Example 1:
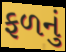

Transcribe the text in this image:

ફળનું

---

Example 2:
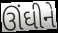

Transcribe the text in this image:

ઊંઘીને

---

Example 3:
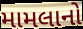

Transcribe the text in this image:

મામલાનો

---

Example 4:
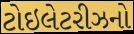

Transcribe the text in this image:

ટોઇલેટરીઝનો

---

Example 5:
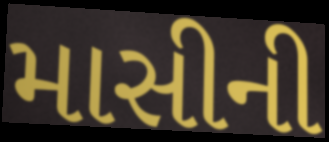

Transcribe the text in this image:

માસીની